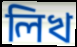
লিখ